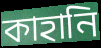
কাহানি